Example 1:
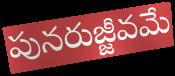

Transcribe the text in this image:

పునరుజ్జీవమే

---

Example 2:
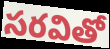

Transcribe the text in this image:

సరవితో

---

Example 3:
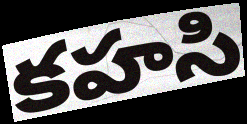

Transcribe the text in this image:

కహసి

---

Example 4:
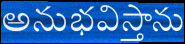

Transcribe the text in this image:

అనుభవిస్తాను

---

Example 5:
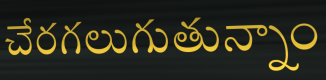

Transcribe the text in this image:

చేరగలుగుతున్నాం